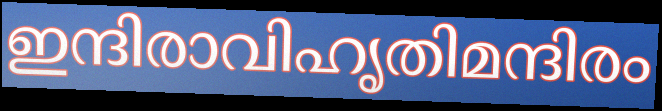
ഇന്ദിരാവിഹൃതിമന്ദിരം